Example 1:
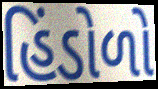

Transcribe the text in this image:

હિંડોળો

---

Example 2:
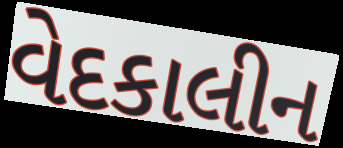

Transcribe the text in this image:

વેદકાલીન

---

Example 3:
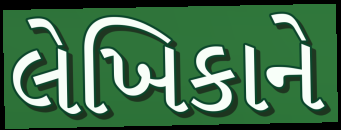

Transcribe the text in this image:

લેખિકાને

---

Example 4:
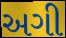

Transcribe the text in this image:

અગી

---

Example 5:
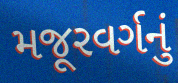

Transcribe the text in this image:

મજૂરવર્ગનું